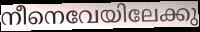
നീനെവേയിലേക്കു